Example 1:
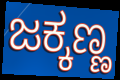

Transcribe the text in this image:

ಜಕ್ಕಣ್ಣ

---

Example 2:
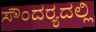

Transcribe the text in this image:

ಸೌಂದರ‍್ಯದಲ್ಲಿ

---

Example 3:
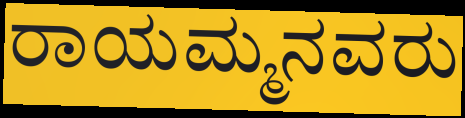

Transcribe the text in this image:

ರಾಯಮ್ಮನವರು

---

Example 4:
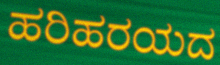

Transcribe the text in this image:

ಹರಿಹರಯದ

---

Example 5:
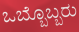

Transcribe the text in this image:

ಒಬ್ಬೊಬ್ಬರು